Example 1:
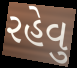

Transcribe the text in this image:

રહેવુ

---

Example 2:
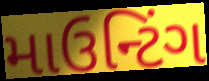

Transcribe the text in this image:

માઉન્ટિંગ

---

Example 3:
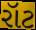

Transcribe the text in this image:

રૉટ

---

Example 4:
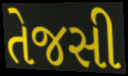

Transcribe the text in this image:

તેજસી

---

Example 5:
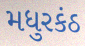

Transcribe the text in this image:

મધુરકંઠ